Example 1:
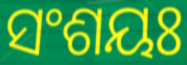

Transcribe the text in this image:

ସଂଶୟଃ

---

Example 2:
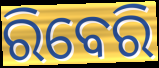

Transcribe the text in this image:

ରିବେରି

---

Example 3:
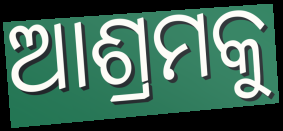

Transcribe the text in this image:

ଆଶ୍ରମକୁ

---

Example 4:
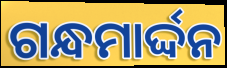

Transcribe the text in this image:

ଗନ୍ଧମାର୍ଦ୍ଦନ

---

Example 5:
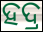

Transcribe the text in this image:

ହଦ୍ର